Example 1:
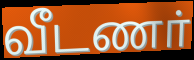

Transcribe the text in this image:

வீடணர்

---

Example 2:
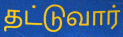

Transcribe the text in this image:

தட்டுவார்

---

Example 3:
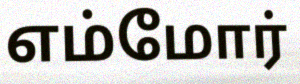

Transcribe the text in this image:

எம்மோர்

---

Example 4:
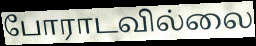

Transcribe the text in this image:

போராடவில்லை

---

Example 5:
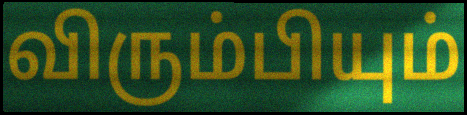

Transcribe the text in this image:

விரும்பியும்